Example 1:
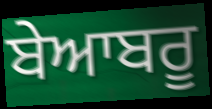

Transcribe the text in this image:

ਬੇਆਬਰੂ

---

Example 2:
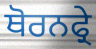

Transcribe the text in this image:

ਥੋਰਨਫ੍ਰੇ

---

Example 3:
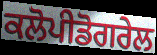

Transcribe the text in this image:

ਕਲੋਪੀਡੋਗਰੇਲ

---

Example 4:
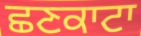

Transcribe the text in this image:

ਛਣਕਾਟਾ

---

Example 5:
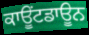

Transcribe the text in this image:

ਕਾਊਂਟਡਾਊਨ